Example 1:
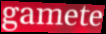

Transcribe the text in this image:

gamete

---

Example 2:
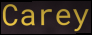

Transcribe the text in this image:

Carey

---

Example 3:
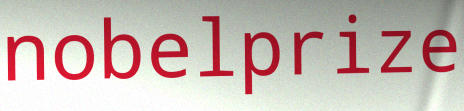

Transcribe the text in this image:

nobelprize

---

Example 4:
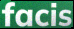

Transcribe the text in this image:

facis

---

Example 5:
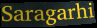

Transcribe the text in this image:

Saragarhi